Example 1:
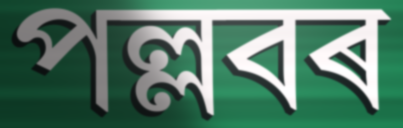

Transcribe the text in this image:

পল্লবৰ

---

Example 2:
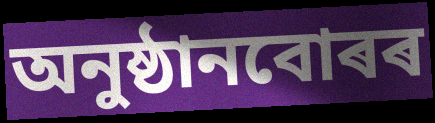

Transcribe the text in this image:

অনুষ্ঠানবোৰৰ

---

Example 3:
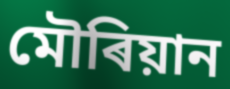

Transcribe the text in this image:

মৌৰিয়ান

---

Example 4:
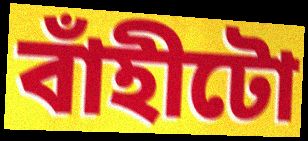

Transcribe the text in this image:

বাঁহীটো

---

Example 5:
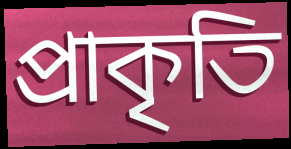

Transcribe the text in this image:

প্ৰাকৃতি